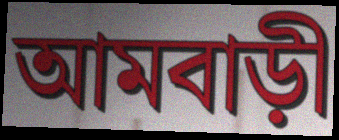
আমবাড়ী